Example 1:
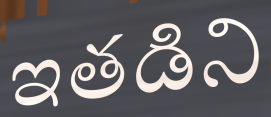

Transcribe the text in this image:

ఇతడిని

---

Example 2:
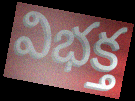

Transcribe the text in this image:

విభక్త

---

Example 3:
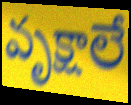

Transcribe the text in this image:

వృక్షాలే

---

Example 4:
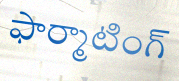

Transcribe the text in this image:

ఫార్మాటింగ్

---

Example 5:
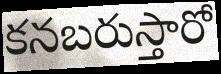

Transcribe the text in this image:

కనబరుస్తారో